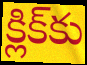
క్లిక్‌కు